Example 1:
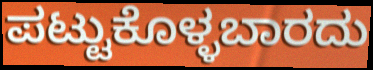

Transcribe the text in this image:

ಪಟ್ಟುಕೊಳ್ಳಬಾರದು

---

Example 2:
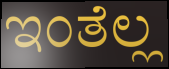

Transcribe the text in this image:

ಇಂತೆಲ್ಲ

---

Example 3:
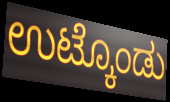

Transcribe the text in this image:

ಉಟ್ಕೊಂಡು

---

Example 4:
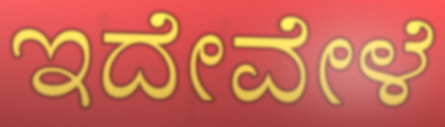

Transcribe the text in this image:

ಇದೇವೇಳೆ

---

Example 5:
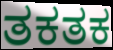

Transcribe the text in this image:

ತಕತಕ